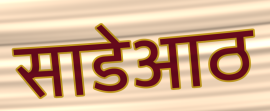
साडेआठ